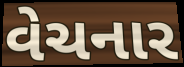
વેચનાર